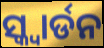
ସ୍କ୍ବାର୍ଡନ